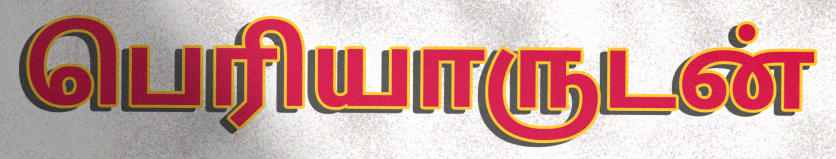
பெரியாருடன்